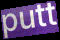
putt